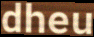
dheu